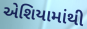
એશિયામાંથી